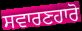
ਸਵਾਰਣਹਾਰੋ